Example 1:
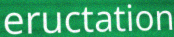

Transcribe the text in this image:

eructation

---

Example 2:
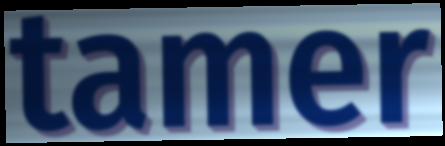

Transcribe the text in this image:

tamer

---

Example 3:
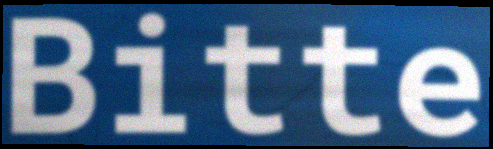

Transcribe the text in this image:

Bitte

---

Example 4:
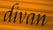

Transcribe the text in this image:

divan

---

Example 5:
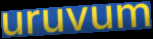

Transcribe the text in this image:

uruvum